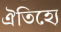
ঐতিহ্যে